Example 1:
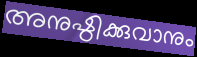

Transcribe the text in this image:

അനുഷ്ഠിക്കുവാനും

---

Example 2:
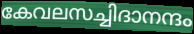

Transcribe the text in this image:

കേവലസച്ചിദാനന്ദം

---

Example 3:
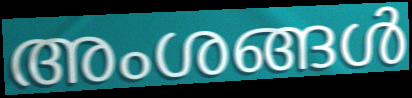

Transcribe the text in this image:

അംശങ്ങൾ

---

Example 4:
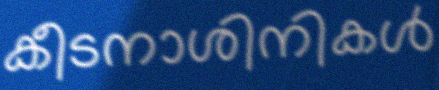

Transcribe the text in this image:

കീടനാശിനികൾ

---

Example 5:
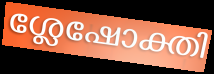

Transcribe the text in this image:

ശ്ലേഷോക്തി